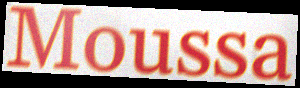
Moussa